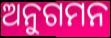
ଅନୁଗମନ